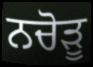
ਨਚੋੜੂ